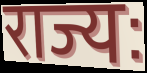
राज्यः